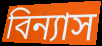
বিন্যাস